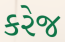
કરેજ